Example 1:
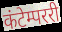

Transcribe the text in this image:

कंटेम्पररी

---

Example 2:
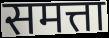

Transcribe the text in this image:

समत्ता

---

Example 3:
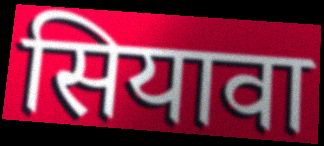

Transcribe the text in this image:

सियावा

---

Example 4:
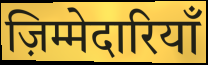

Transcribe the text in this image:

ज़िम्मेदारियाँ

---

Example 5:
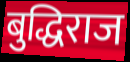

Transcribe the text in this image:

बुद्धिराज